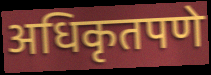
अधिकृतपणे